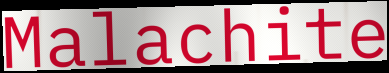
Malachite